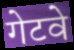
गेटवे